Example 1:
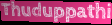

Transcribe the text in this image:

Thuduppathi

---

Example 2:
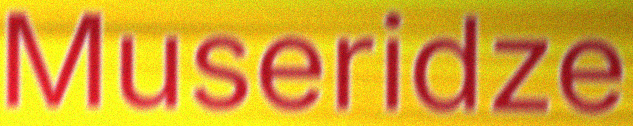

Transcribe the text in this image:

Museridze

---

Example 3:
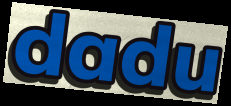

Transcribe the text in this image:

dadu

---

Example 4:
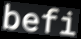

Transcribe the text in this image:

befi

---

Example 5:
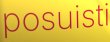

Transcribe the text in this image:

posuisti